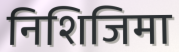
निशिजिमा